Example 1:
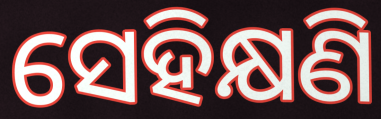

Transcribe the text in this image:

ସେହିକ୍ଷଣି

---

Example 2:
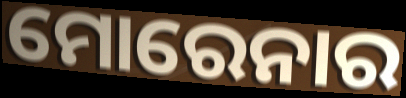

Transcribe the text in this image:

ମୋରେନାର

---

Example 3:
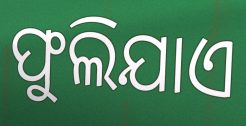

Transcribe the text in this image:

ଫୁଲିଯାଏ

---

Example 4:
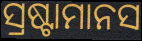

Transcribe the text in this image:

ସ୍ରଷ୍ଟାମାନସ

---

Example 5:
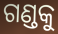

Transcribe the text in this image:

ଗଣ୍ଡକୁ